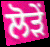
ਲੋੜੇਂ